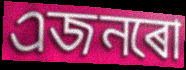
এজনৰো